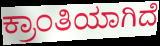
ಕ್ರಾಂತಿಯಾಗಿದೆ